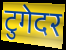
टुगेदर